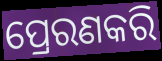
ପ୍ରେରଣକରି